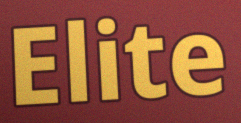
Elite